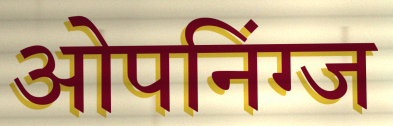
ओपनिंग्ज